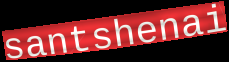
santshenai